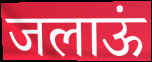
जलाऊं